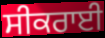
ਸੀਕਰਾਈ